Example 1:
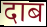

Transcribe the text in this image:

दाब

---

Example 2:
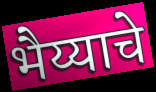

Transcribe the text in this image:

भैय्याचे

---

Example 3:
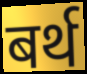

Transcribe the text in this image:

बर्थ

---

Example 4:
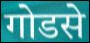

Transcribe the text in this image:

गोडसे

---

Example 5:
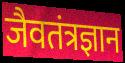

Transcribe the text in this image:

जैवतंत्रज्ञान